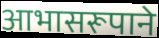
आभासरूपाने